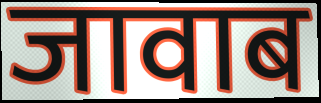
जावाब